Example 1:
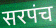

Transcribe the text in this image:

सरपंच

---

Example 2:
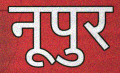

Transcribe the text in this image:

नूपुर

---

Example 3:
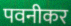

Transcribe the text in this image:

पवनीकर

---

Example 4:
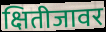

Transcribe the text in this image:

क्षितीजावर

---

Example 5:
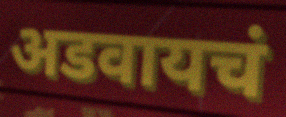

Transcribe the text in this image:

अडवायचं